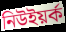
নিউইয়র্ক